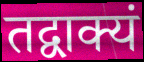
तद्वाक्यं